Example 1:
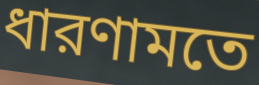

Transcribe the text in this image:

ধারণামতে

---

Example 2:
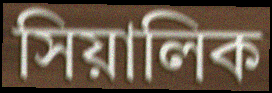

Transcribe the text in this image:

সিয়ালিক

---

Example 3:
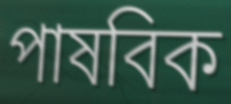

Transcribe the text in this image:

পাষবিক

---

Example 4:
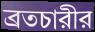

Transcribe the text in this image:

ব্রতচারীর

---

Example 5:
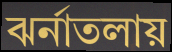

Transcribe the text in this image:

ঝর্নাতলায়